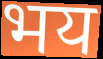
भय